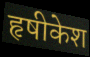
हृषीकेश